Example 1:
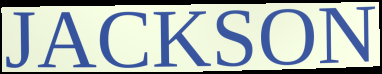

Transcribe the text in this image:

JACKSON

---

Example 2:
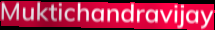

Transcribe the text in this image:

Muktichandravijay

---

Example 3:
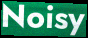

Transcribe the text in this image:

Noisy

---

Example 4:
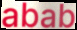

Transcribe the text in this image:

abab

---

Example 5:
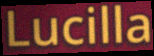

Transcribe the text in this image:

Lucilla